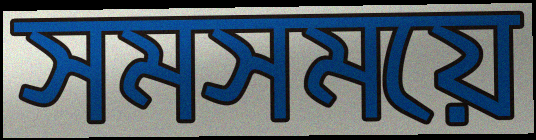
সমসময়ে